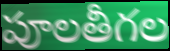
పూలతీగల